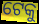
ଟେକୁ